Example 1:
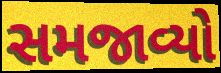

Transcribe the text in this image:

સમજાવ્યો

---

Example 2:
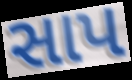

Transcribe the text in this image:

સાપ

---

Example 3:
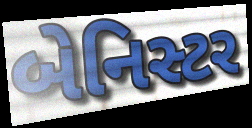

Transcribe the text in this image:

બેનિસ્ટર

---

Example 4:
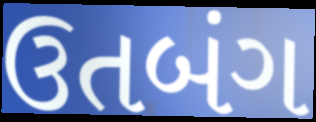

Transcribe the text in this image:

ઉતબંગ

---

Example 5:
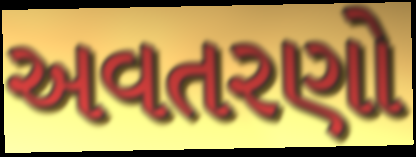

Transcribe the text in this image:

અવતરણો